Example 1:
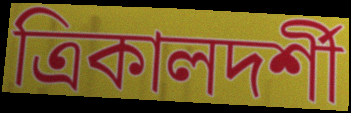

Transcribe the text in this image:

ত্রিকালদর্শী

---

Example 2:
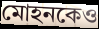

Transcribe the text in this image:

মোহনকেও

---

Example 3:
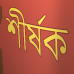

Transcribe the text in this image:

শীর্ষক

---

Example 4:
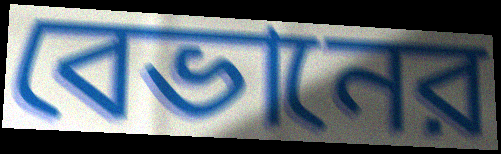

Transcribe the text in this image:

বেভানের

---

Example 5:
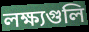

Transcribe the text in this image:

লক্ষ্যগুলি